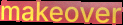
makeover